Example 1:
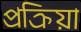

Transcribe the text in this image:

প্ৰক্ৰিয়া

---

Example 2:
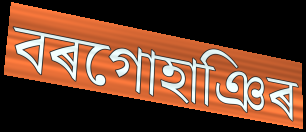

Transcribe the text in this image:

বৰগোহাঞিৰ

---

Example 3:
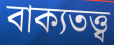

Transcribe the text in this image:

বাক্যতত্ত্ব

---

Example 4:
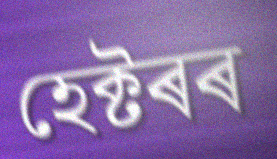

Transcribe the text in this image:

হেক্টৰৰ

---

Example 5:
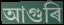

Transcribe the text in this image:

আগুৰি